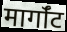
मार्गॉट